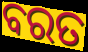
ବରତ